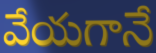
వేయగానే